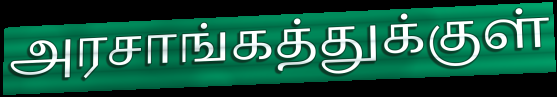
அரசாங்கத்துக்குள்